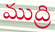
ముద్రి